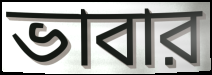
ভাবার